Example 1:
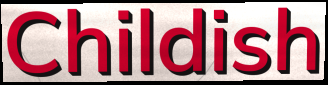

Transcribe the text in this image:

Childish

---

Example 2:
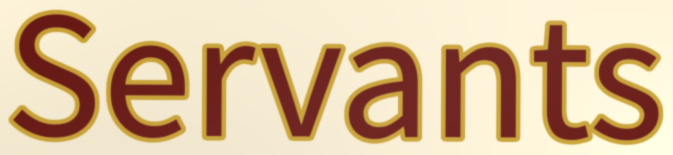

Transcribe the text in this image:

Servants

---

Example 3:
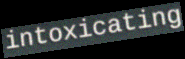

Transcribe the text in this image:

intoxicating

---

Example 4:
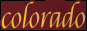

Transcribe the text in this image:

colorado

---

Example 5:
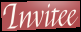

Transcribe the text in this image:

Invitee